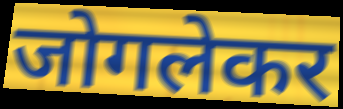
जोगलेकर